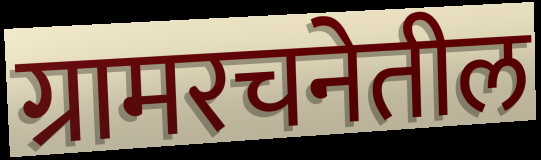
ग्रामरचनेतील